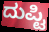
ದುಪ್ಟಿ